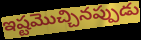
ఇష్టమొచ్చినప్పుడు